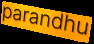
parandhu